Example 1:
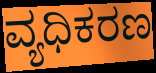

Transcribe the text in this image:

ವ್ಯಧಿಕರಣ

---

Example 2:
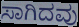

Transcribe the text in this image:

ಸಾಗಿದವು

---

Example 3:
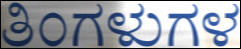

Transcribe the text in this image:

ತಿಂಗಳುಗಳ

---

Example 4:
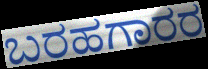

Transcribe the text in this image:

ಬರಹಗಾರರ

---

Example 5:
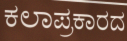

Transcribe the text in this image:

ಕಲಾಪ್ರಕಾರದ